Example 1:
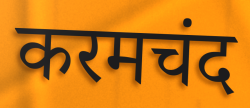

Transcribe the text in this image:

करमचंद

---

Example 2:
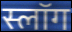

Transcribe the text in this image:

स्लॉग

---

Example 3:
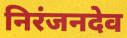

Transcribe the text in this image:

निरंजनदेव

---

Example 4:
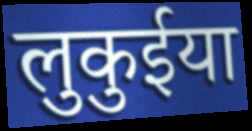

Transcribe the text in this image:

लुकुईया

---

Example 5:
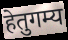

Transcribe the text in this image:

हेतुगम्य